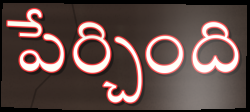
పేర్చింది